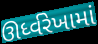
ઊર્ધ્વરેખામાં